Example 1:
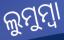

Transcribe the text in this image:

ଲୁମୁମ୍ବା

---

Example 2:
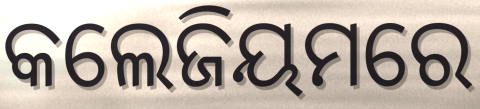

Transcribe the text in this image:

କଲେଜିୟମରେ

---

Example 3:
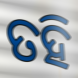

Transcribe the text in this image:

ତହି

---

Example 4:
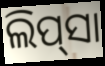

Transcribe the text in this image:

ଲିପ୍‌ସା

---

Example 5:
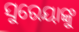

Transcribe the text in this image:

ସୁରେୟାଙ୍କୁ